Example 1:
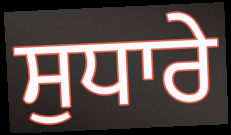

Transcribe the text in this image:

ਸੁਧਾਰੇ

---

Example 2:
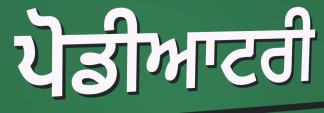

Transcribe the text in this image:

ਪੋਡੀਆਟਰੀ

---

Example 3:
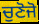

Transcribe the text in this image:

ਚੁਣੋਜੋ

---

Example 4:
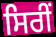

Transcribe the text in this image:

ਸਿਰੀਂ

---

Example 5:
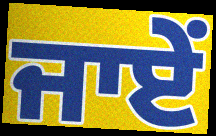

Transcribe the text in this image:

ਜਾਏਂ